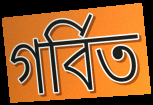
গৰ্বিত